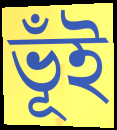
ভূঁই